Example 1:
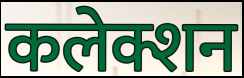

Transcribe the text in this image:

कलेक्शन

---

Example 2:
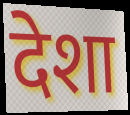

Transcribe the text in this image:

देशा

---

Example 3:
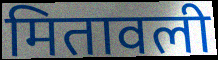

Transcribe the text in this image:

मितावली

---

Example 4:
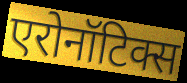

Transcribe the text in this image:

एरोनॉटिक्स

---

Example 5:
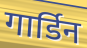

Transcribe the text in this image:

गार्डिन